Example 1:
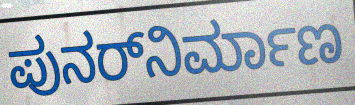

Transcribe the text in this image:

ಪುನರ್‌ನಿರ್ಮಾಣ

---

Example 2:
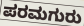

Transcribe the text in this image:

ಪರಮಗುರು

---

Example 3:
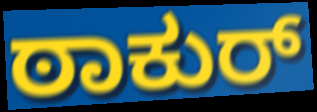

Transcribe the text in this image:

ಠಾಕುರ್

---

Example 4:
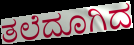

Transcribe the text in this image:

ತಲೆದೂಗಿದ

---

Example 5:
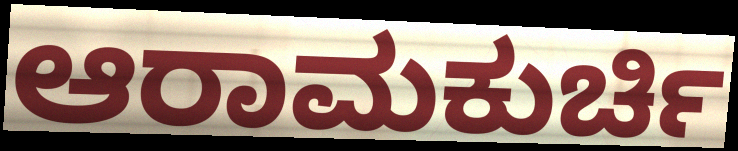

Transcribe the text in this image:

ಆರಾಮಕುರ್ಚಿ